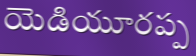
యెడియూరప్ప